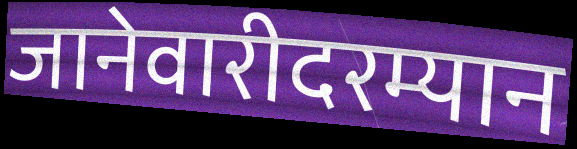
जानेवारीदरम्यान